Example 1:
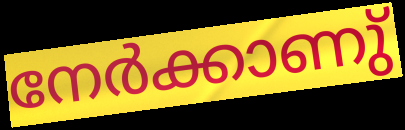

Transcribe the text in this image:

നേർക്കാണു്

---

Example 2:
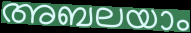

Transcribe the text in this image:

അബലയാം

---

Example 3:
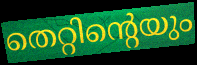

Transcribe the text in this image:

തെറ്റിന്റെയും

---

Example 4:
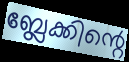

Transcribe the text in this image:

ബ്ലേക്കിന്റെ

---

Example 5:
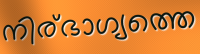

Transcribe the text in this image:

നിര്ഭാഗ്യത്തെ